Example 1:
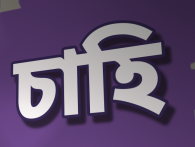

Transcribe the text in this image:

চাহি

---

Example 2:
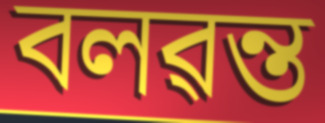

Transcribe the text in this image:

বলৱন্ত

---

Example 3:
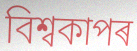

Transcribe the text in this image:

বিশ্বকাপৰ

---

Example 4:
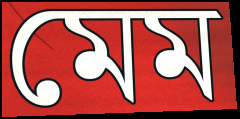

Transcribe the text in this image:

মেম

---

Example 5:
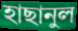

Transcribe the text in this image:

হাছানুল